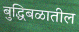
बुद्धिबळातील